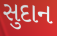
સુદાન